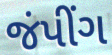
જંપીંગ